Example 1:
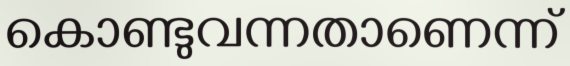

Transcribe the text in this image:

കൊണ്ടുവന്നതാണെന്ന്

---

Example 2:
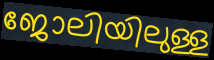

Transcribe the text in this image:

ജോലിയിലുള്ള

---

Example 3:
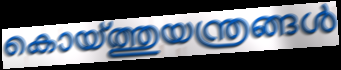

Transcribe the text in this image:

കൊയ്ത്തുയന്ത്രങ്ങൾ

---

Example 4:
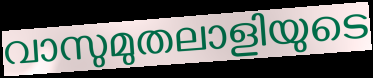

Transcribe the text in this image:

വാസുമുതലാളിയുടെ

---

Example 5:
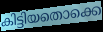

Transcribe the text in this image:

കിട്ടിയതൊക്കെ